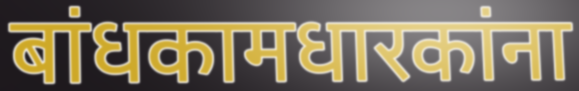
बांधकामधारकांना